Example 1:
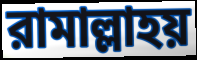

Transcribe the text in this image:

রামাল্লাহয়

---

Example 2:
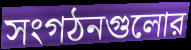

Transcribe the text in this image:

সংগঠনগুলোর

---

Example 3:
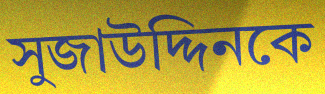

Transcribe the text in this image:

সুজাউদ্দিনকে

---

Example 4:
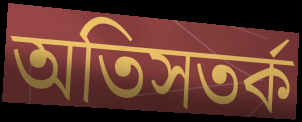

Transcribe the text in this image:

অতিসতর্ক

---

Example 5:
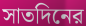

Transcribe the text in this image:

সাতদিনের